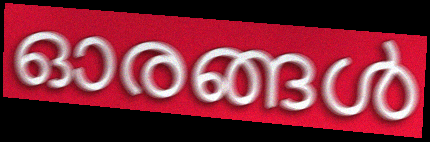
ഓരങ്ങൾ